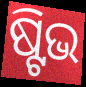
ଷ୍ଟିଭ